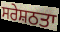
ਸਰੇਸ਼ਠਤਾ